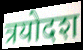
त्रयोदश